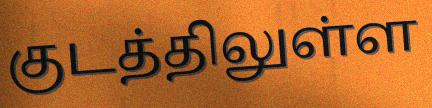
குடத்திலுள்ள